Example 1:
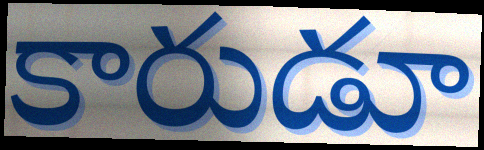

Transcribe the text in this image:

కారుడూ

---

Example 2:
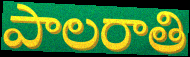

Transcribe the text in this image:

పాలరాతి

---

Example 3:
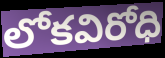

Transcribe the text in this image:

లోకవిరోధి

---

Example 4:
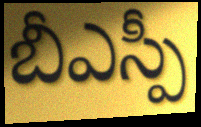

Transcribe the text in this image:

బీఎస్పీ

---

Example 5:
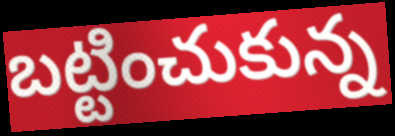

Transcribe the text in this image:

బట్టించుకున్న